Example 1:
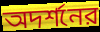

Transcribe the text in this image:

অদর্শনের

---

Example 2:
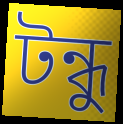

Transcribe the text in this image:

টন্ধু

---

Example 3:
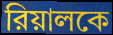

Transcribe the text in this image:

রিয়ালকে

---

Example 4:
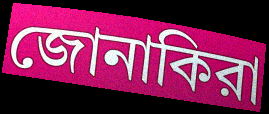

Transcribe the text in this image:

জোনাকিরা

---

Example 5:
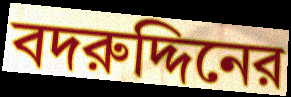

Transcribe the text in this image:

বদরুদ্দিনের